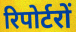
रिपोर्टरों